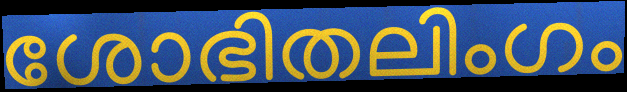
ശോഭിതലിംഗം